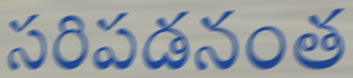
సరిపడనంత